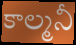
కాల్మనీ